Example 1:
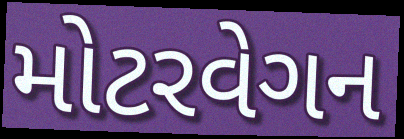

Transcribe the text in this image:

મોટરવેગન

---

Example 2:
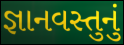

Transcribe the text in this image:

જ્ઞાનવસ્તુનું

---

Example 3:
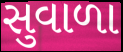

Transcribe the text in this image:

સુવાળા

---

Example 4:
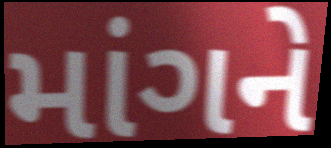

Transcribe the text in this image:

માંગને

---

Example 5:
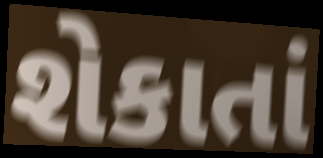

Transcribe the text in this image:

શેકાતાં